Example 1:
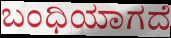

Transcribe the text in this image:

ಬಂಧಿಯಾಗದೆ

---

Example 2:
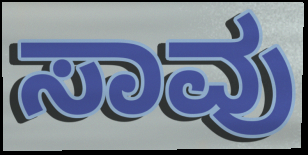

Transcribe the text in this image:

ಸಾವು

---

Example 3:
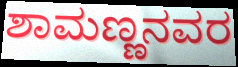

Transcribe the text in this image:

ಶಾಮಣ್ಣನವರ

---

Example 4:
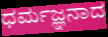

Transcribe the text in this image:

ಧರ್ಮಜ್ಞನಾದ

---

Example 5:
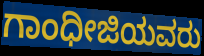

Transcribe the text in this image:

ಗಾಂಧೀಜಿಯವರು